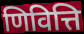
णिवित्ति